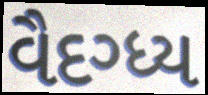
વૈદગ્ધ્ય